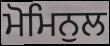
ਮੋਮਿਨੁਲ